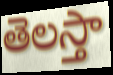
తెలస్తా